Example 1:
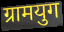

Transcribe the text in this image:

ग्रामयुग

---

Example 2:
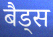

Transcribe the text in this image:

बैड्स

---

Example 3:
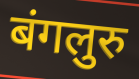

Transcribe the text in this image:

बंगलुरु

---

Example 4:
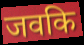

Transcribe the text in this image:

जवकि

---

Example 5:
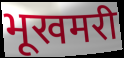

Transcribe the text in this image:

भूखमरी